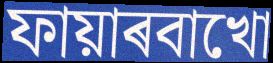
ফায়াৰবাখো